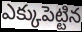
ఎక్కుపెట్టిన